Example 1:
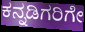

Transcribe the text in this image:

ಕನ್ನಡಿಗರಿಗೇ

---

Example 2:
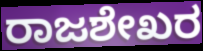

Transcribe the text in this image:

ರಾಜಶೇಖರ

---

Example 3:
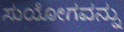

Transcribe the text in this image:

ಸುಯೋಗವನ್ನು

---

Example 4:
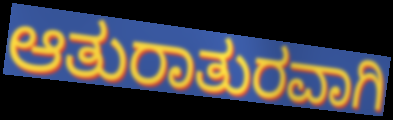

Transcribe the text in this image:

ಆತುರಾತುರವಾಗಿ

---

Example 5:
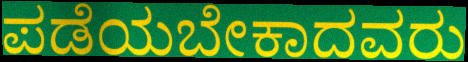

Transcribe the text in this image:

ಪಡೆಯಬೇಕಾದವರು